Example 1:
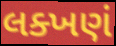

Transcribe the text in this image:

લક્ખણં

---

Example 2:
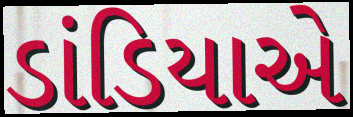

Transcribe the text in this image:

ડાંડિયાએ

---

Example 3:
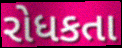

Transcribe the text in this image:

રોધકતા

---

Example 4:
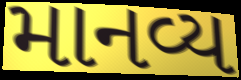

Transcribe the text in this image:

માનવ્ય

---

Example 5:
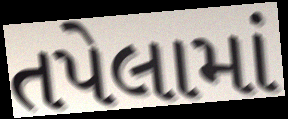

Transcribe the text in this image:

તપેલામાં